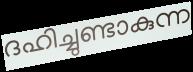
ദഹിച്ചുണ്ടാകുന്ന